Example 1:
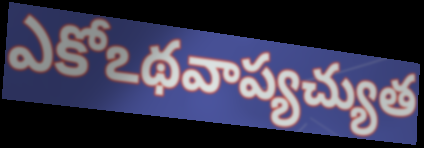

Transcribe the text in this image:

ఎకోఽథవాప్యచ్యుత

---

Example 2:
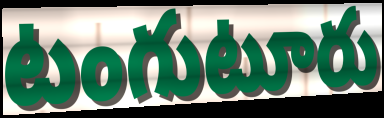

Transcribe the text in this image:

టంగుటూరు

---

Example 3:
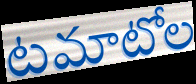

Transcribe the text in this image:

టమాటోల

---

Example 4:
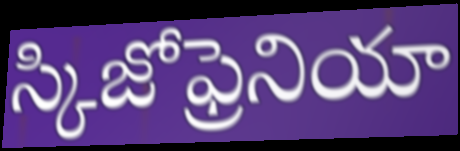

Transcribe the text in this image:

స్కిజోఫ్రెనియా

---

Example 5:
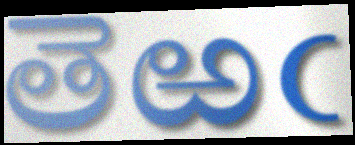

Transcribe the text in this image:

తెఱఁ